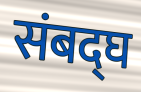
संबद्घ